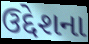
ઉદ્દેશના